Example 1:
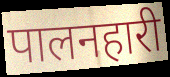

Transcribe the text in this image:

पालनहारी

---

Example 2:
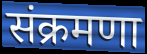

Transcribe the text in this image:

संक्रमणा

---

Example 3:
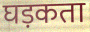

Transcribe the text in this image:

घड़कता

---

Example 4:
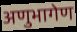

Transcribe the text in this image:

अणुभागेण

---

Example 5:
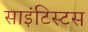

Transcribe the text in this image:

साइंटिस्टस